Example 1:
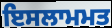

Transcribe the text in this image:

ਇਸਲਾਮਮਤ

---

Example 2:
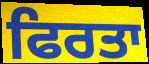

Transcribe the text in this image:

ਫਿਰਤਾ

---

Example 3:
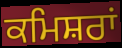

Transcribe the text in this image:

ਕਮਿਸ਼ਰਾਂ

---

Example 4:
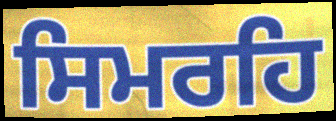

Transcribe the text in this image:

ਸਿਮਰਹਿ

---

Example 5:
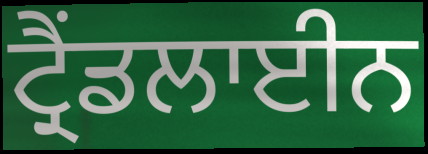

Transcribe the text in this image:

ਟ੍ਰੈਂਡਲਾਈਨ